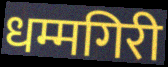
धम्मगिरी